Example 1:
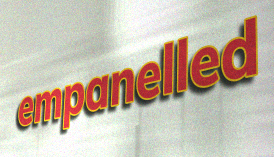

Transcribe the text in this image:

empanelled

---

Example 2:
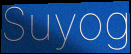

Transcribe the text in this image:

Suyog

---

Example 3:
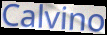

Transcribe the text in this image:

Calvino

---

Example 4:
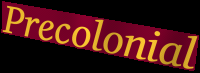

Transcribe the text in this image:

Precolonial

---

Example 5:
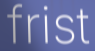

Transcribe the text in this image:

frist